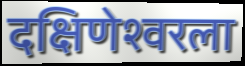
दक्षिणेश्वरला